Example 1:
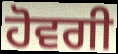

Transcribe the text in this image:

ਹੋਵਗੀ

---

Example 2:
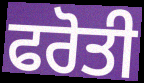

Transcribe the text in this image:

ਫਰੋਤੀ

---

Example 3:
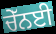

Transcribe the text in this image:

ਚੇੱਨਈ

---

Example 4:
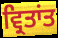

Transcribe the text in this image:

ਵ੍ਰਿਤਾਂਤ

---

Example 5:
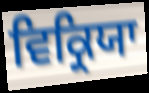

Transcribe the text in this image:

ਵਿਕ੍ਰਿਯਾ